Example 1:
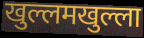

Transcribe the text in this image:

खुल्लमखुल्ला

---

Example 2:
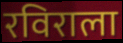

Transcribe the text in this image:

रविराला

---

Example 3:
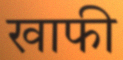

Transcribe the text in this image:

खाफी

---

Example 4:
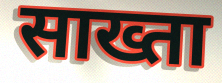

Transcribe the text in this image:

साख्ता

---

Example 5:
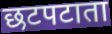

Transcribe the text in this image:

छटपटाता